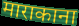
माराकाना